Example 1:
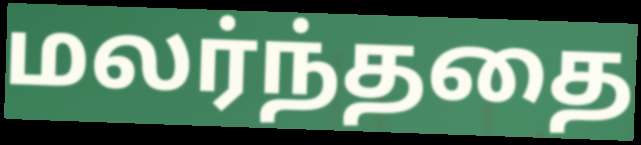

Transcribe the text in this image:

மலர்ந்ததை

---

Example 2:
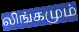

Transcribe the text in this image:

லிங்கமும்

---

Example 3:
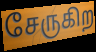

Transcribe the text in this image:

சேருகிற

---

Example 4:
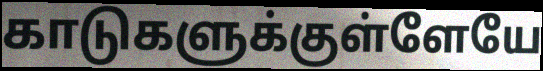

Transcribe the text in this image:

காடுகளுக்குள்ளேயே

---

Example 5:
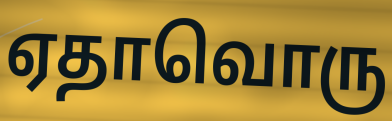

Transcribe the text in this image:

ஏதாவொரு